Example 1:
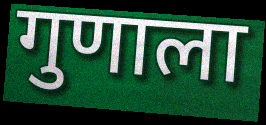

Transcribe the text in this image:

गुणाला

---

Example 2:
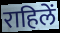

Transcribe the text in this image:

राहिलें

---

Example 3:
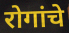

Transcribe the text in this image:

रोगांचे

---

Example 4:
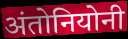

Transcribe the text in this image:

अंतोनियोनी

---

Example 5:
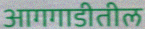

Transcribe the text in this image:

आगगाडीतील